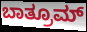
ಬಾತ್ರೂಮ್